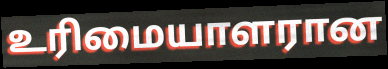
உரிமையாளரான